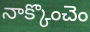
నాక్కొంచెం